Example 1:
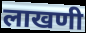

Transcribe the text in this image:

लाखणी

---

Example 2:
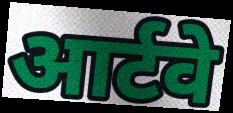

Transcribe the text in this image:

आर्टवे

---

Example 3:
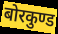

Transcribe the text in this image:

बोरकुण्ड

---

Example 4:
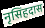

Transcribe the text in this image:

नृसिंहदास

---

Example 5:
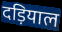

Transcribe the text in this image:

दड़ियाल